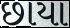
છાયા